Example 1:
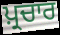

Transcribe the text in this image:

ਪ਼੍ਰਚਾਰ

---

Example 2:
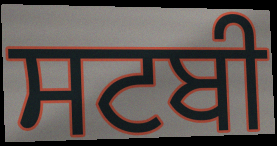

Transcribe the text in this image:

ਸਟਬੀ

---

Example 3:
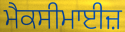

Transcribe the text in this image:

ਮੈਕਸੀਮਾਈਜ਼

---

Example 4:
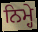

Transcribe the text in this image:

ਨਿਮ੍ਹੇ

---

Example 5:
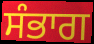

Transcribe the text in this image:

ਸੰਭਾਗ